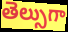
తెల్సుగా